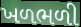
ખળભળી